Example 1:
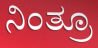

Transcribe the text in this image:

ನಿಂತ್ರೂ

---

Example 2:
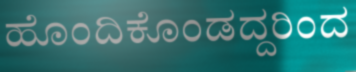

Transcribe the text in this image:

ಹೊಂದಿಕೊಂಡದ್ದರಿಂದ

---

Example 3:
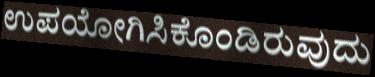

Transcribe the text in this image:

ಉಪಯೋಗಿಸಿಕೊಂಡಿರುವುದು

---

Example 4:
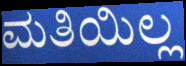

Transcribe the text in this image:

ಮತಿಯಿಲ್ಲ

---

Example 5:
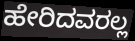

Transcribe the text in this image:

ಹೇರಿದವರಲ್ಲ